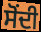
ਸੋਂਦੀ